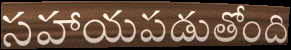
సహాయపడుతోంది